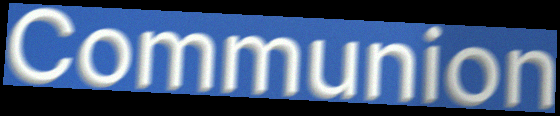
Communion